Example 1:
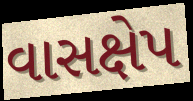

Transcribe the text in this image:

વાસક્ષેપ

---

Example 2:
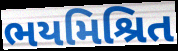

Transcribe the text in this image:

ભયમિશ્રિત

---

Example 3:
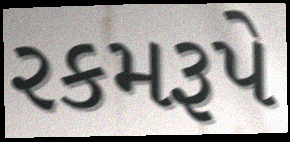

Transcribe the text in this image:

રકમરૂપે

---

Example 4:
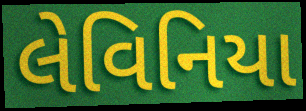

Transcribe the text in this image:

લેવિનિયા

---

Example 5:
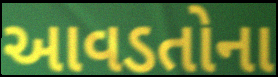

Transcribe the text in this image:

આવડતોના